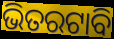
ଭିତରଟାବି